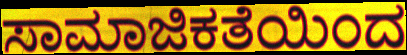
ಸಾಮಾಜಿಕತೆಯಿಂದ